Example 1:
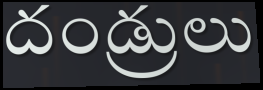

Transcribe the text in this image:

దండ్రులు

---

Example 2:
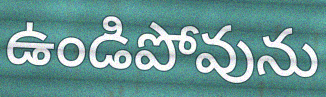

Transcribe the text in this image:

ఉండిపోవును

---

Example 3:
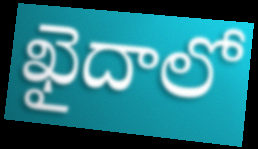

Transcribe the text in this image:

ఖైదాలో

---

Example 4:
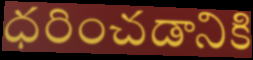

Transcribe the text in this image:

ధరించడానికి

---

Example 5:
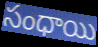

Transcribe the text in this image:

సంధాయి